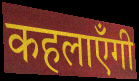
कहलाएँगी